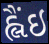
હ્લૈંઇ